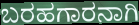
ಬರಹಗಾರನಾಗಿ